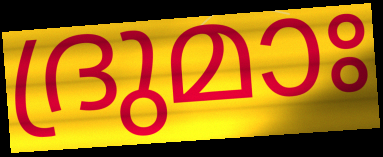
ദ്രുമാഃ